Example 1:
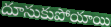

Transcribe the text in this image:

దూసుకుపోయాయి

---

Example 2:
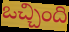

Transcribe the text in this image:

ఒచ్చింది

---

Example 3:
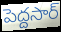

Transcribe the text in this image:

పెద్దసార్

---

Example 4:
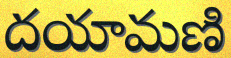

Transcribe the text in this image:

దయామణి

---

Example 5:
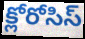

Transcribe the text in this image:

క్లోరోసిస్